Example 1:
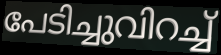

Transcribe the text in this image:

പേടിച്ചുവിറച്ച്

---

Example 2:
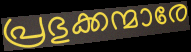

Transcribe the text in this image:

പ്രഭുക്കന്മാരേ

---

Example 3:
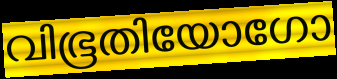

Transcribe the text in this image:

വിഭൂതിയോഗോ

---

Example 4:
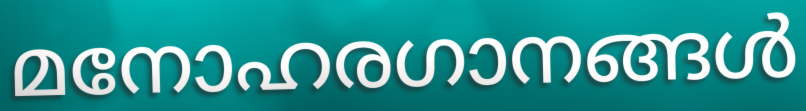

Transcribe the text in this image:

മനോഹരഗാനങ്ങൾ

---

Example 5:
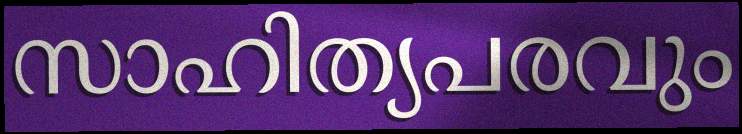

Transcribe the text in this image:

സാഹിത്യപരവും